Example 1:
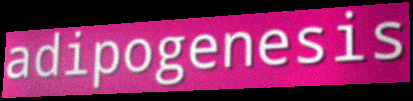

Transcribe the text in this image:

adipogenesis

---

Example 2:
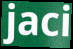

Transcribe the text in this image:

jaci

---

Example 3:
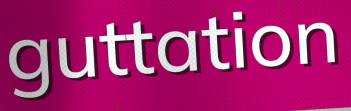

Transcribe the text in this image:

guttation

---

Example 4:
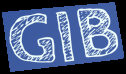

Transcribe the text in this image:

GIB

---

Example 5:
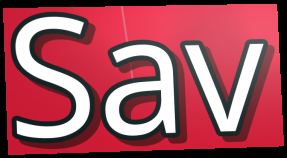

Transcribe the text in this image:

Sav